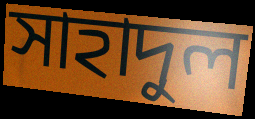
সাহাদুল